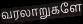
வரலாறுகளே